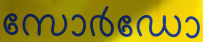
സോർഡോ